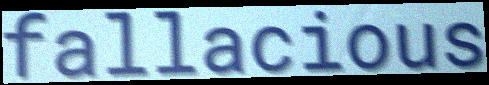
fallacious